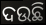
ଦଉଛି